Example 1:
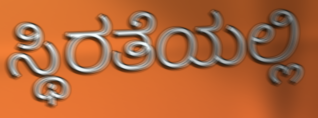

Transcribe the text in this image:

ಸ್ಥಿರತೆಯಲ್ಲಿ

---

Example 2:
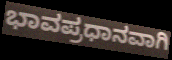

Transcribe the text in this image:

ಭಾವಪ್ರಧಾನವಾಗಿ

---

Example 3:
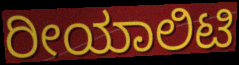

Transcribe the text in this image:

ರೀಯಾಲಿಟಿ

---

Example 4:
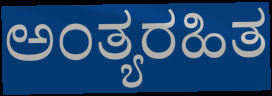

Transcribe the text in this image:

ಅಂತ್ಯರಹಿತ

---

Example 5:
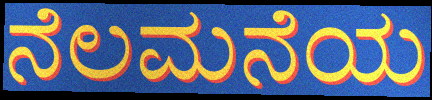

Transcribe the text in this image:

ನೆಲಮನೆಯ